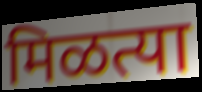
मिळत्या